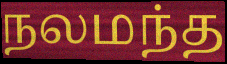
நலமந்த